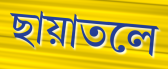
ছায়াতলে